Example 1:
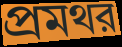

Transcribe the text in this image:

প্রমথর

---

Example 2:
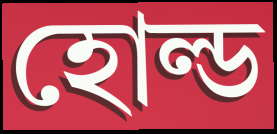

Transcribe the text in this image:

হোল্ড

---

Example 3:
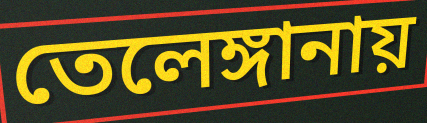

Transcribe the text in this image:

তেলেঙ্গানায়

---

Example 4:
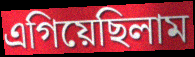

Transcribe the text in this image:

এগিয়েছিলাম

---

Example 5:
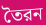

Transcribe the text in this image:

তৈরন